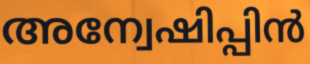
അന്വേഷിപ്പിൻ